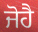
ਜੋਹੈ